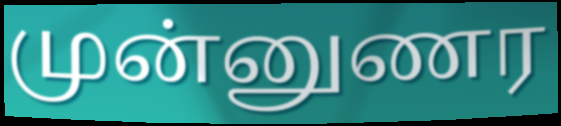
முன்னுணர